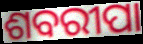
ଶବରୀପା